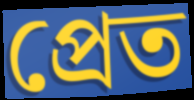
প্রেত